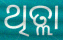
ଥିତ୍ଲା